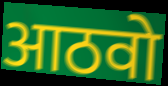
आठवो